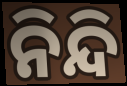
ନିନ୍ଦି